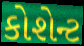
કોશેન્ટ